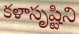
కళాసృష్టిని